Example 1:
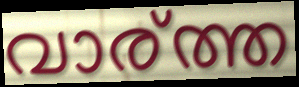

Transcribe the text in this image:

വാര്ത്ത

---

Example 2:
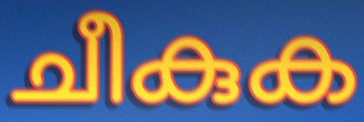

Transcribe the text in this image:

ചീകുക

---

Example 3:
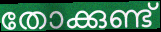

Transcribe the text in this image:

തോക്കുണ്ട്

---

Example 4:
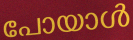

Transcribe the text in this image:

പോയാൾ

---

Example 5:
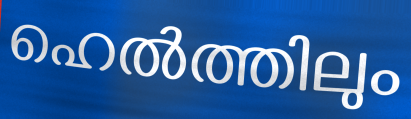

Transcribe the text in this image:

ഹെൽത്തിലും